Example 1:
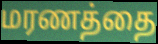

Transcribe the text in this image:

மரணத்தை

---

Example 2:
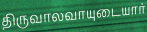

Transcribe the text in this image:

திருவாலவாயுடையார்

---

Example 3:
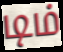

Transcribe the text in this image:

டிம்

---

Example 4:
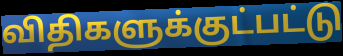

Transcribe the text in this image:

விதிகளுக்குட்பட்டு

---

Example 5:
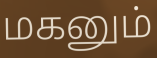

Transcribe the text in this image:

மகனும்